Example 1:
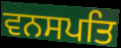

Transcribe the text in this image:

ਵਨਸਪਤਿ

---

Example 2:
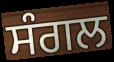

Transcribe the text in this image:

ਸੰਗਲ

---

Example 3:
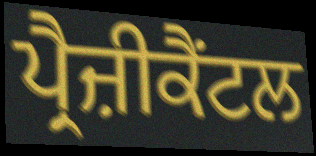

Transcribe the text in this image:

ਪ੍ਰੈਜ਼ੀਕੈਂਟਲ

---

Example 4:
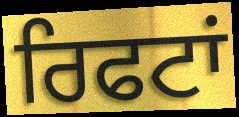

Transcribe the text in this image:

ਰਿਫਟਾਂ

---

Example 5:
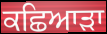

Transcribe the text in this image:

ਕਛਿਆੜਾ